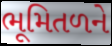
ભૂમિતળને